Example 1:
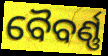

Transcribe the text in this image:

ବୈବର୍ଣ୍ଣ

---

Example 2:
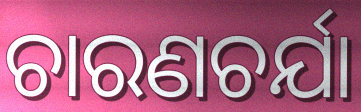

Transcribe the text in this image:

ଚାରଣଚର୍ଯା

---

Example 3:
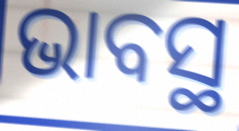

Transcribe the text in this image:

ଭାବସ୍ଥ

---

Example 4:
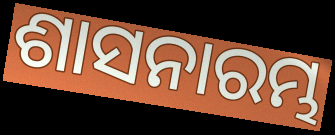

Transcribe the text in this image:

ଶାସନାରମ୍ଭ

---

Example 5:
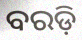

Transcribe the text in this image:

ବରଡ଼ି